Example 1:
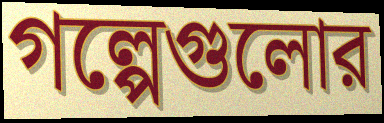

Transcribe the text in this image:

গল্পেগুলোর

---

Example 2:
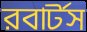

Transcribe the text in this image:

রবার্টস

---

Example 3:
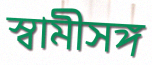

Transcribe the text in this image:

স্বামীসঙ্গ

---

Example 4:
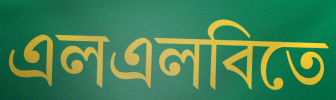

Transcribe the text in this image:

এলএলবিতে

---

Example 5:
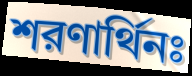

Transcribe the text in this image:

শরণার্থিনঃ